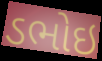
ડભોઇ